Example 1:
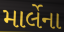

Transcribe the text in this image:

માર્લેના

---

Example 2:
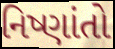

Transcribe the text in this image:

નિષ્ણાંતો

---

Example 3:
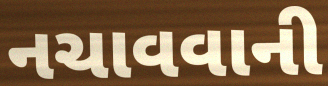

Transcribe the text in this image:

નચાવવાની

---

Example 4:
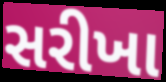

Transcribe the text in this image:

સરીખા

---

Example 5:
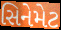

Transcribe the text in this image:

સિનેમેટ